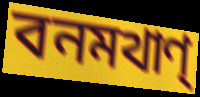
বনমথাণ্